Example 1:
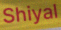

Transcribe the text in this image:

Shiyal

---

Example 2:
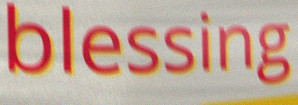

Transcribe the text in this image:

blessing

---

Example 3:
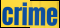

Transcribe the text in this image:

crime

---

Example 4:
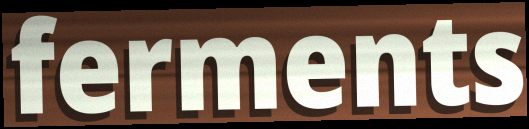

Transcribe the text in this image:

ferments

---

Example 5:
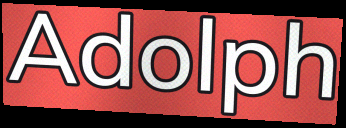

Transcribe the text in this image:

Adolph